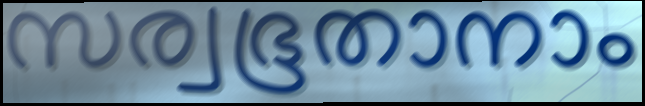
സര്വഭൂതാനാം